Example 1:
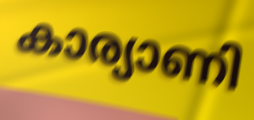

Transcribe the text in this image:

കാര്യാണി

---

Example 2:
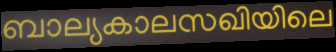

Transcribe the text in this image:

ബാല്യകാലസഖിയിലെ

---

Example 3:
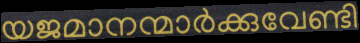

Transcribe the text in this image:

യജമാനന്മാർക്കുവേണ്ടി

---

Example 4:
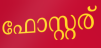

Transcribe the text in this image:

ഫോസ്റ്റര്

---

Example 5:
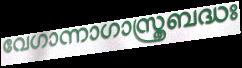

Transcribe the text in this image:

വേഗാന്നാഗാസ്ത്രബദ്ധഃ